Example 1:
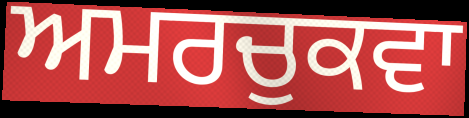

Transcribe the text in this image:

ਅਮਰਚੁਕਵਾ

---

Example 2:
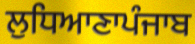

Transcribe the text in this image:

ਲੁਧਿਆਣਾਪੰਜਾਬ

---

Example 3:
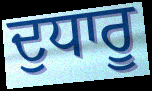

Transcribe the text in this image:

ਦੁਧਾਰੂ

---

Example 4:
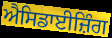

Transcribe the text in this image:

ਐਸਿਡਾਈਜ਼ਿੰਗ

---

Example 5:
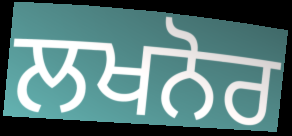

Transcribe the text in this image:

ਲਖਨੋਰ